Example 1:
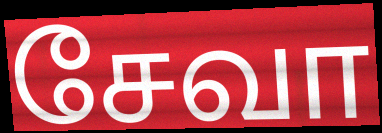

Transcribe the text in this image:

சேவா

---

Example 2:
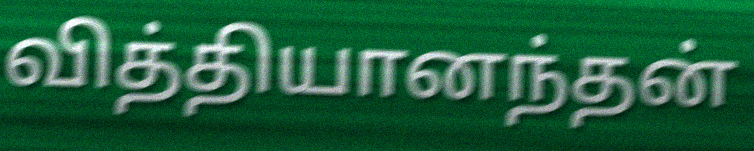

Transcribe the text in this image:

வித்தியானந்தன்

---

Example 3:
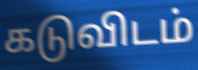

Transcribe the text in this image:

கடுவிடம்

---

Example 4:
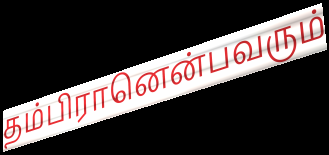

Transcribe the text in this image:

தம்பிரானென்பவரும்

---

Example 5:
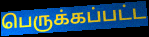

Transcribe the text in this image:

பெருக்கப்பட்ட